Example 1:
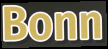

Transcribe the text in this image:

Bonn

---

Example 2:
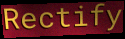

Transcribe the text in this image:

Rectify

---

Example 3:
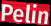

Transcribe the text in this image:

Pelin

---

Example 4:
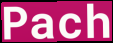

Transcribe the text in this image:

Pach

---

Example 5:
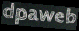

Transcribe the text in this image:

dpaweb